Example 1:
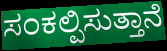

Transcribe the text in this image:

ಸಂಕಲ್ಪಿಸುತ್ತಾನೆ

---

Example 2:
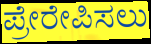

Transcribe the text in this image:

ಪ್ರೇರೇಪಿಸಲು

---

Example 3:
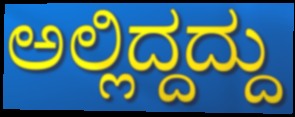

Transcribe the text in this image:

ಅಲ್ಲಿದ್ದದ್ದು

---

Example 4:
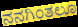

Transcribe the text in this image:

ನನಗಿಂತಲೂ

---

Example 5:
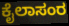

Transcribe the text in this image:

ಕೈಲಾಸಂರ